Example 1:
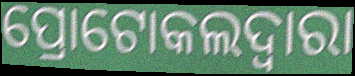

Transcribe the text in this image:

ପ୍ରୋଟୋକଲଦ୍ୱାରା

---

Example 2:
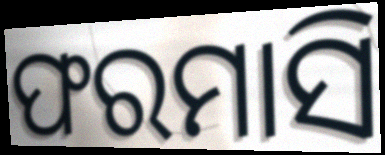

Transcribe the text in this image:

ଫରମାସି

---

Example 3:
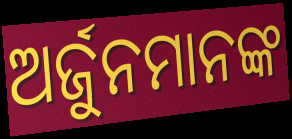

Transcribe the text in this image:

ଅର୍ଜୁନମାନଙ୍କ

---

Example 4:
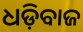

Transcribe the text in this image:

ଧଡ଼ିବାଜ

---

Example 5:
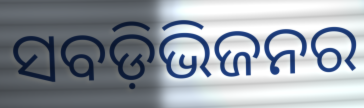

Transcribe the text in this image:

ସବଡ଼ିଭିଜନର